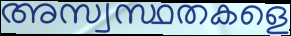
അസ്വസ്ഥതകളെ